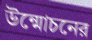
উন্মোচনের